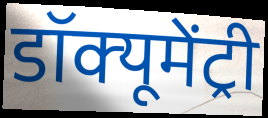
डॉक्‍यूमेंट्री